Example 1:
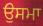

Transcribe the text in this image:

ਉਸਮਾ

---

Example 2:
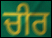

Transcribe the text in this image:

ਚੀਰ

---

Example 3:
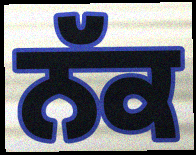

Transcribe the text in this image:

ਨੱਕ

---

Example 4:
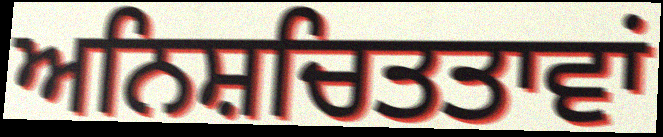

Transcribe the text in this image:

ਅਨਿਸ਼ਚਿਤਤਾਵਾਂ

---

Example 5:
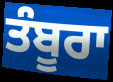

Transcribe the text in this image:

ਤੰਬੂਰਾ